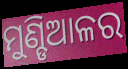
ମୁଣ୍ଡିଆଳର